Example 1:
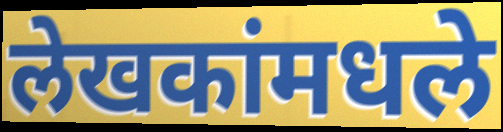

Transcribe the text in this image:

लेखकांमधले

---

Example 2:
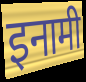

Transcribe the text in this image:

इनामी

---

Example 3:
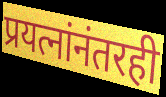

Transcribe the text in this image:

प्रयत्नांनंतरही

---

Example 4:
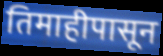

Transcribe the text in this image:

तिमाहीपासून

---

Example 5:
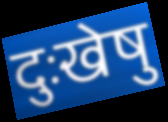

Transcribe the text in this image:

दुःखेषु